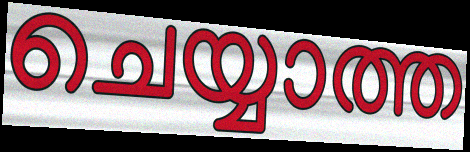
ചെയ്യാത്ത